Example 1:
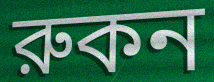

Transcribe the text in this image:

রুকন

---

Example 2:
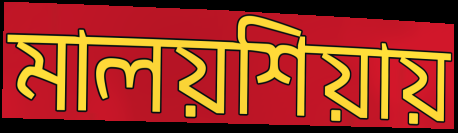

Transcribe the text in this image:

মালয়শিয়ায়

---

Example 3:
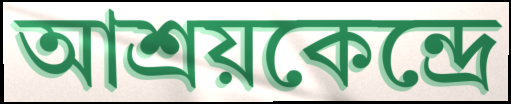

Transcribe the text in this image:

আশ্রয়কেন্দ্রে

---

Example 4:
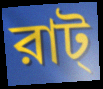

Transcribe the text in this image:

রাট্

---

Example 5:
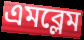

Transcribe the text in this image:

এমব্লেম